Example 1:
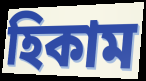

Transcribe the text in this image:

হিকাম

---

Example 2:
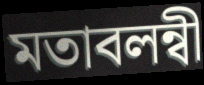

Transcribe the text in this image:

মতাবলন্বী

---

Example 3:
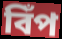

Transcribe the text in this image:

বিঁপ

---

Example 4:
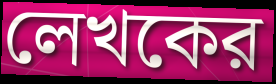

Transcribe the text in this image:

লেখকের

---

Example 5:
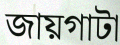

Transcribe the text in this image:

জায়গাটা